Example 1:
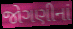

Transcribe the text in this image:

જોગણીનાં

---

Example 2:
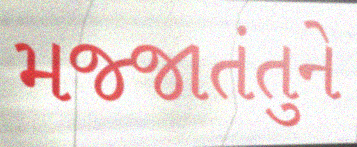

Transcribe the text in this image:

મજ્જાતંતુને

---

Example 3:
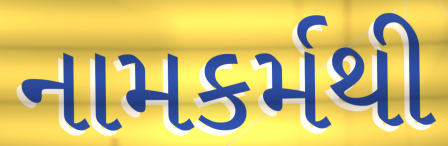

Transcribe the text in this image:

નામકર્મથી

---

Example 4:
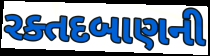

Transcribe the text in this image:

રક્તદબાણની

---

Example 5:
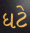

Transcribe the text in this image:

ધટે